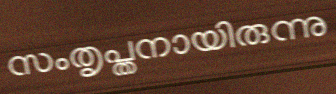
സംതൃപ്തനായിരുന്നു